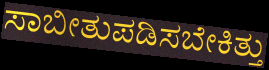
ಸಾಬೀತುಪಡಿಸಬೇಕಿತ್ತು